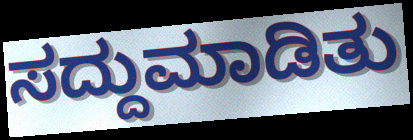
ಸದ್ದುಮಾಡಿತು